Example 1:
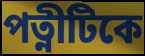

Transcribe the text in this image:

পত্নীটিকে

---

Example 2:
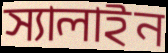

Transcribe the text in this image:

স্যালাইন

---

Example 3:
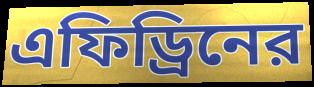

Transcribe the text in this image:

এফিড্রিনের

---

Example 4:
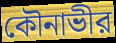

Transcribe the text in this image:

কৌনাভীর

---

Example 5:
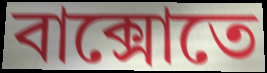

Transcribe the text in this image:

বাক্সোতে